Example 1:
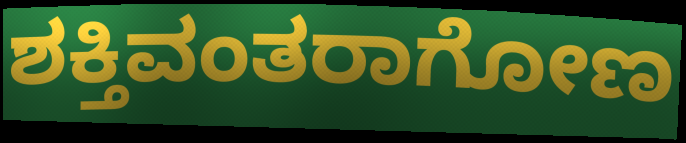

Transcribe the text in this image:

ಶಕ್ತಿವಂತರಾಗೋಣ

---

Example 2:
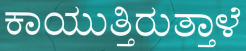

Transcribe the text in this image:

ಕಾಯುತ್ತಿರುತ್ತಾಳೆ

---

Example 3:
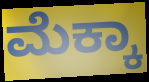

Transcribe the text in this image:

ಮೆಕ್ಕಾ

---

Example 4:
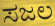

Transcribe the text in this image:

ಸಜಲ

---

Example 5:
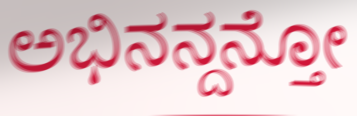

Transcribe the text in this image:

ಅಭಿನನ್ದನ್ತೋ